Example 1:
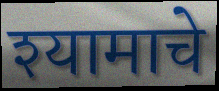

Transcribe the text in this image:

श्यामाचे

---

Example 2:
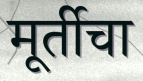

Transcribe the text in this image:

मूर्तीचा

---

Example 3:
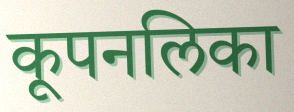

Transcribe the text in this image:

कूपनलिका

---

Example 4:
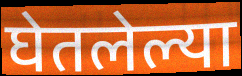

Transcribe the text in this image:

घेतलेल्या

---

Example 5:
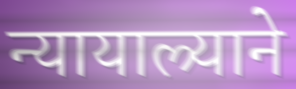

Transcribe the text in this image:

न्यायाल्याने